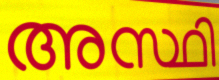
അസ്ഥി